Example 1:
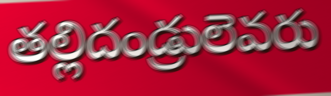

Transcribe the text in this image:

తల్లిదండ్రులెవరు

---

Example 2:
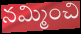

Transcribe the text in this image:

నమ్మించి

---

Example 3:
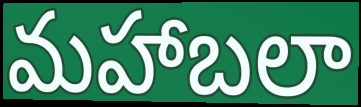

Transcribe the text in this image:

మహాబలా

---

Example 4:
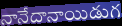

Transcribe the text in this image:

నానేదానాయిడుగ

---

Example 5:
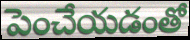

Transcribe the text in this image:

పెంచేయడంతో